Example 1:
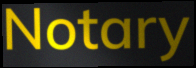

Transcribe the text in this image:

Notary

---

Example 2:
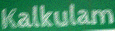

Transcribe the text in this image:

Kalkulam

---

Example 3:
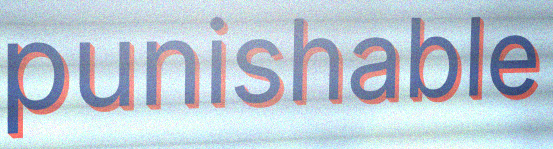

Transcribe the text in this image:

punishable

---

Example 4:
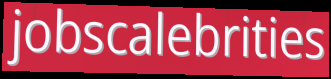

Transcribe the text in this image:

jobscalebrities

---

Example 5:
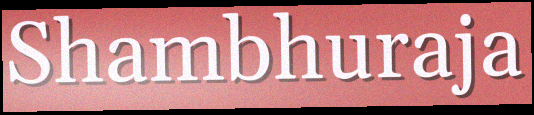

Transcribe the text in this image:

Shambhuraja